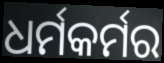
ଧର୍ମକର୍ମର